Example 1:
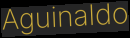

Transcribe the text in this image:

Aguinaldo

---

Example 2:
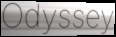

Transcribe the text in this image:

Odyssey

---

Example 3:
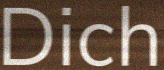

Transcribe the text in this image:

Dich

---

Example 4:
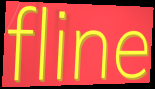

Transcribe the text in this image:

fline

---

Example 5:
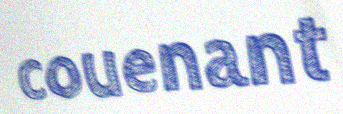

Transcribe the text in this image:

couenant